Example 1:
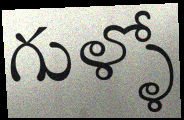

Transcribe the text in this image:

గుళ్ళో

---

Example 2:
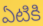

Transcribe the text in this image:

ఏటికి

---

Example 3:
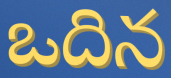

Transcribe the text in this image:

ఒదిన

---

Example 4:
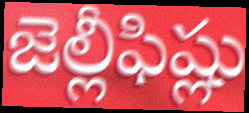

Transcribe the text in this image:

జెల్లీఫిష్లు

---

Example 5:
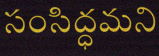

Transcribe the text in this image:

సంసిద్ధమని